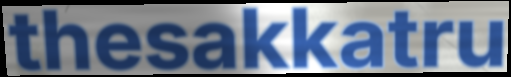
thesakkatru